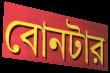
বোনটার